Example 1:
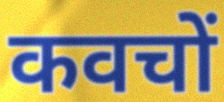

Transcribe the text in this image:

कवचों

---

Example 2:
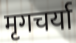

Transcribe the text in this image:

मृगचर्या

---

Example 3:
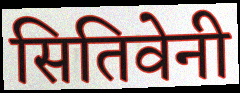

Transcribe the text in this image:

सितिवेनी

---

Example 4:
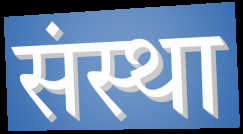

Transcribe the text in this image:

संस्‍था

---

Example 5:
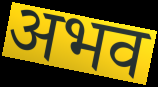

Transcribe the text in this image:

अभव